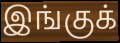
இங்குக்